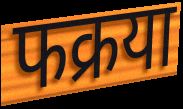
फक्रया